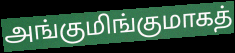
அங்குமிங்குமாகத்